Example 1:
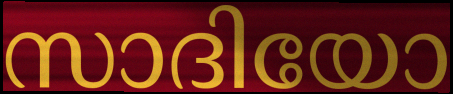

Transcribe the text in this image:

സാദിയോ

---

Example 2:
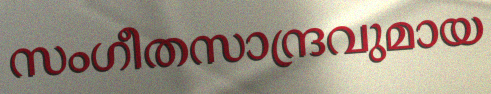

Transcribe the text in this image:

സംഗീതസാന്ദ്രവുമായ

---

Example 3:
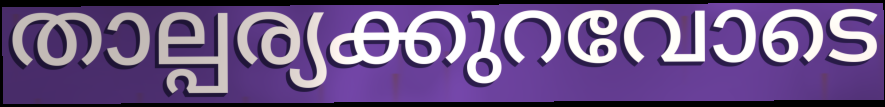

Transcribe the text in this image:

താല്പര്യക്കുറവോടെ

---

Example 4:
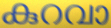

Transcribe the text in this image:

കുറവാ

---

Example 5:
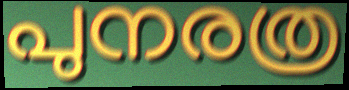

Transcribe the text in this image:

പുനരത്ര